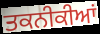
ਤਕਨੀਕੀਆਂ